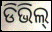
ଡିଭିଲ୍